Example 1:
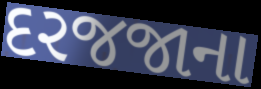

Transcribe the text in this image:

દરજજાના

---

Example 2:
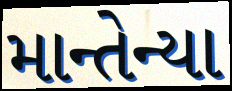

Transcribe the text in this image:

માન્તેન્યા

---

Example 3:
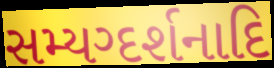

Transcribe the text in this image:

સમ્યગ્દર્શનાદિ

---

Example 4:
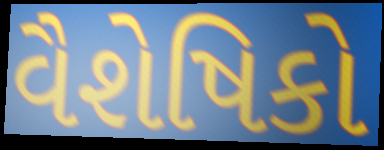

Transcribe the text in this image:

વૈશેષિકો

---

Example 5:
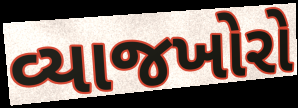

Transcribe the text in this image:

વ્યાજખોરો